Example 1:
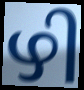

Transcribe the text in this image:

ഴി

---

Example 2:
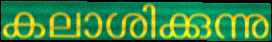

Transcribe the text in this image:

കലാശിക്കുന്നു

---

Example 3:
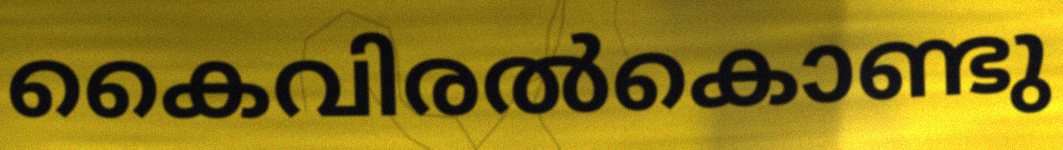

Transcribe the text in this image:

കൈവിരൽകൊണ്ടു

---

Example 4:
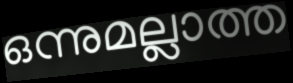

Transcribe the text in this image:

ഒന്നുമല്ലാത്ത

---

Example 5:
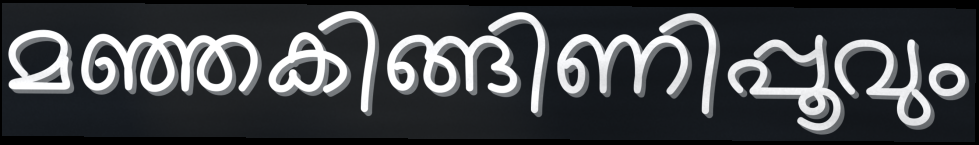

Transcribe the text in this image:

മഞ്ഞകിങ്ങിണിപ്പൂവും